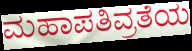
ಮಹಾಪತಿವ್ರತೆಯ